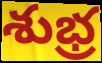
శుభ్ర